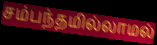
சம்பந்தமில்லாமல்